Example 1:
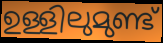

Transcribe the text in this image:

ഉള്ളിലുമുണ്ട്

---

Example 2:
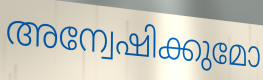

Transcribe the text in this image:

അന്വേഷിക്കുമോ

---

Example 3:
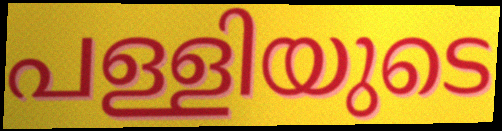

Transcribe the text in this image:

പള്ളിയുടെ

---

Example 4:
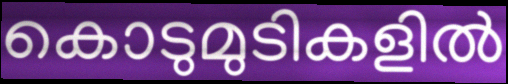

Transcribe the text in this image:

കൊടുമുടികളിൽ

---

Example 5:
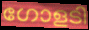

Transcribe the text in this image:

ഗോളടി